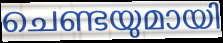
ചെണ്ടയുമായി